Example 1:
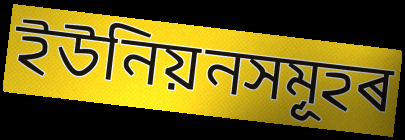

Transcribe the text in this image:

ইউনিয়নসমূহৰ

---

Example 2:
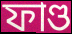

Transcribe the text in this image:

ফাণ্ড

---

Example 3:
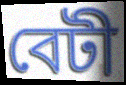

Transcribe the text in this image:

বেটী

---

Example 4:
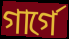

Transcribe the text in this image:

গাৰ্গে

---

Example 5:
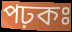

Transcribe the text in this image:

পঢ়কঃ